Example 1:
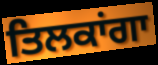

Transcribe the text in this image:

ਤਿਲਕਾਂਗਾ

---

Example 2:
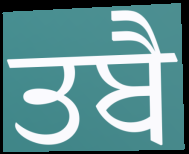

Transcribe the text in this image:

ਤਬੈ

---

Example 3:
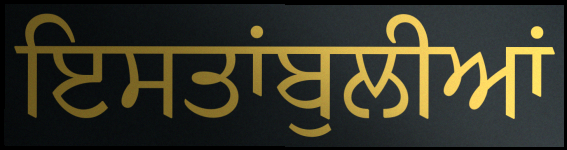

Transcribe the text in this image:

ਇਸਤਾਂਬੁਲੀਆਂ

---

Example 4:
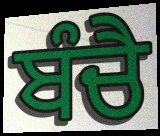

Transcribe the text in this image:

ਬੰਚੈ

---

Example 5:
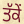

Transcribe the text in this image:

ਤੱਕੇਂ